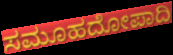
ಸಮೂಹದೋಪಾದಿ